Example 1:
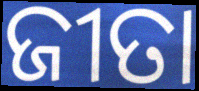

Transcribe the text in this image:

ଜୀତା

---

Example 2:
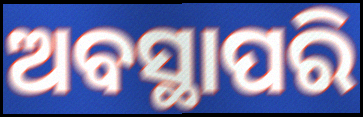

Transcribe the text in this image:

ଅବସ୍ଥାପରି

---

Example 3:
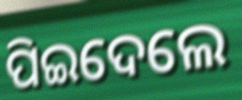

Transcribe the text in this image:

ପିଇଦେଲେ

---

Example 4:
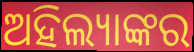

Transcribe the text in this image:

ଅହିଲ୍ୟାଙ୍କର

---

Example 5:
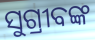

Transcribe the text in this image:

ସୁଗ୍ରୀବଙ୍କ